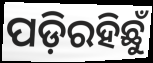
ପଡ଼ିରହିଛୁଁ